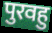
पुरवहु